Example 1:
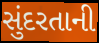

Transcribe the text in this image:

સુંદરતાની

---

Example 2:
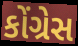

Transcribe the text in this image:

કોંગ્રેસ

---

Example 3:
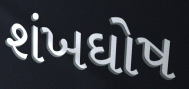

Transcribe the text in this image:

શંખઘોષ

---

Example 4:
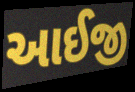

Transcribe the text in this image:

આઈજી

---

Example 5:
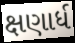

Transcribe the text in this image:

ક્ષણાર્ધ